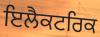
ਇਲੈਕਟਰਿਕ